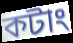
কটাং